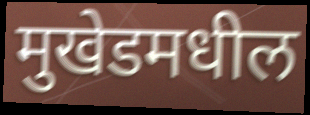
मुखेडमधील